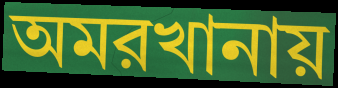
অমরখানায়